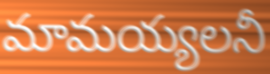
మామయ్యలనీ